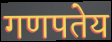
गणपतेय